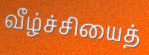
வீழ்ச்சியைத்